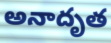
అనాదృత